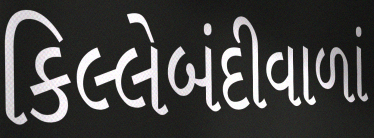
કિલ્લેબંદીવાળાં